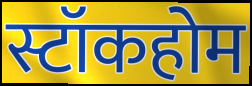
स्टॉकहोम